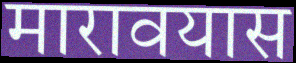
मारावयास